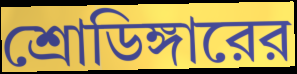
শ্রোডিঙ্গারের